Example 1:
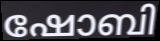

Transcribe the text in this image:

ഷോബി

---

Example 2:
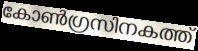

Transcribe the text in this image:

കോൺഗ്രസിനകത്ത്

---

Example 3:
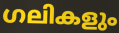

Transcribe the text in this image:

ഗലികളും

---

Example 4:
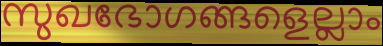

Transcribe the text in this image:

സുഖഭോഗങ്ങളെല്ലാം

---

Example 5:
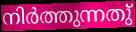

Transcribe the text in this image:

നിർത്തുന്നതു്